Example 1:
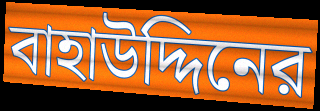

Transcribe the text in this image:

বাহাউদ্দিনের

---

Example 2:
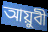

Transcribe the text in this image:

আয়ুবী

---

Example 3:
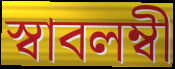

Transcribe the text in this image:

স্বাবলম্বী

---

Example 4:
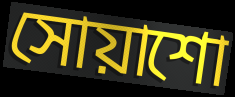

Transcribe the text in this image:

সোয়াশো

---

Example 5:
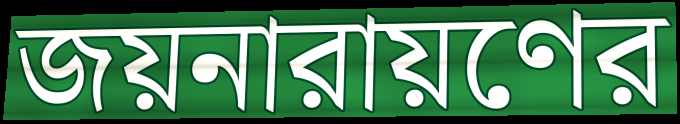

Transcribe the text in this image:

জয়নারায়ণের